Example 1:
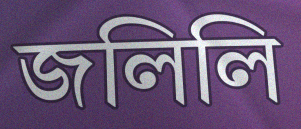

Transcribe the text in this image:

জলিলি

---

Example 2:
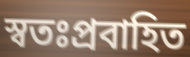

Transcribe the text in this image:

স্বতঃপ্রবাহিত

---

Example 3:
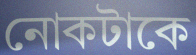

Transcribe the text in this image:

নোকটাকে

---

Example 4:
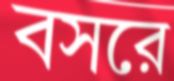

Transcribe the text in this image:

বসরে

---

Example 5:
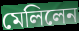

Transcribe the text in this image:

মেলিলেন